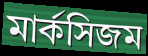
মার্কসিজম